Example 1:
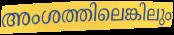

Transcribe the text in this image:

അംശത്തിലെങ്കിലും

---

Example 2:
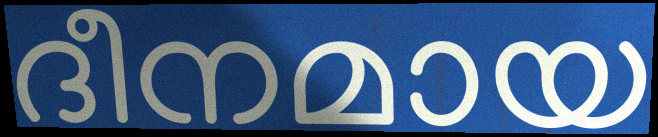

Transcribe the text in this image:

ദീനമായ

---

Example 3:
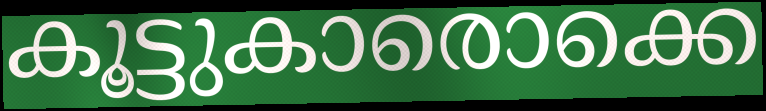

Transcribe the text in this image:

കൂട്ടുകാരൊക്കെ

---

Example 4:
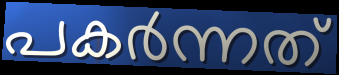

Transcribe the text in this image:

പകർന്നത്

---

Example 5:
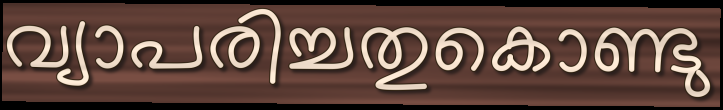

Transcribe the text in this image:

വ്യാപരിച്ചതുകൊണ്ടു